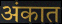
अंकात